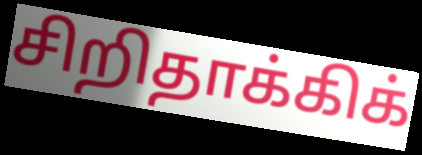
சிறிதாக்கிக்